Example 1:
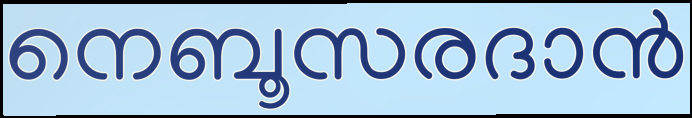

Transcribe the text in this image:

നെബൂസരദാൻ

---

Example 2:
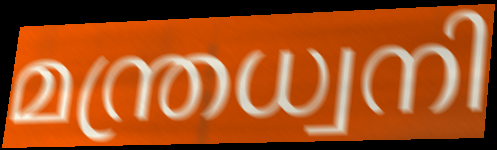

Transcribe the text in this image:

മന്ത്രധ്വനി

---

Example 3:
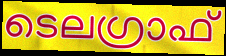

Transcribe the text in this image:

ടെലഗ്രാഫ്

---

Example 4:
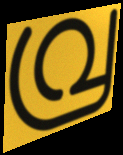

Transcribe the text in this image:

വ്ര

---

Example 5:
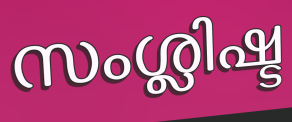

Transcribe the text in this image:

സംശ്ലിഷ്ട